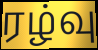
ரழ்வு